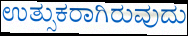
ಉತ್ಸುಕರಾಗಿರುವುದು